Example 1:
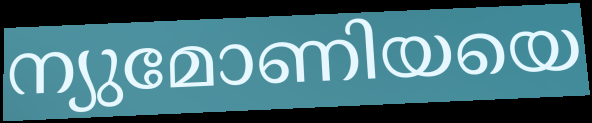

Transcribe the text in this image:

ന്യുമോണിയയെ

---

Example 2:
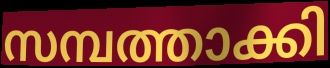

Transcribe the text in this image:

സമ്പത്താക്കി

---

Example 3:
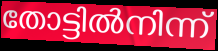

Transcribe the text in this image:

തോട്ടിൽനിന്ന്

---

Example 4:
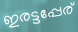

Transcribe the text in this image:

ഇരട്ടപ്പേര്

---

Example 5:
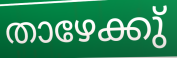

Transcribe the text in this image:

താഴേക്കു്